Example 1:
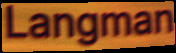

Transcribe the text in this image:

Langman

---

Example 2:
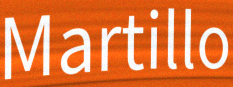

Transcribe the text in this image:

Martillo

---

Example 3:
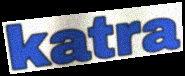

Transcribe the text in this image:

katra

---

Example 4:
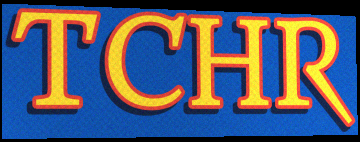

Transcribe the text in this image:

TCHR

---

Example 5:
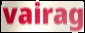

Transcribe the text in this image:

vairag